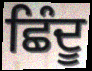
ਛਿੰਦੂ